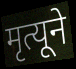
मृत्यूने